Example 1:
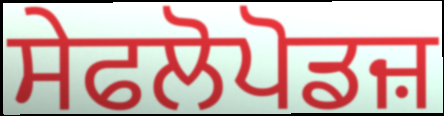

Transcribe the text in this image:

ਸੇਫਲੋਪੋਡਜ਼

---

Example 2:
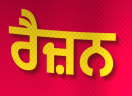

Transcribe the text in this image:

ਰੈਜ਼ਨ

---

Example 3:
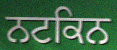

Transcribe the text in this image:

ਨਟਕਿਨ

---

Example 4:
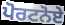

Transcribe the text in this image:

ਪੋਰਟਨੋਏ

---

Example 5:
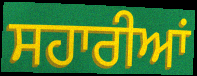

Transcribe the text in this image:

ਸਹਾਰੀਆਂ